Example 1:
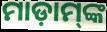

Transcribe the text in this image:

ମାଡ଼ାମ୍‌ଙ୍କ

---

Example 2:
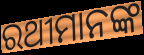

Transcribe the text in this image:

ରଥୀମାନଙ୍କ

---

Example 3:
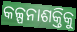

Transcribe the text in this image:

କଳ୍ପନାଶକ୍ତିକୁ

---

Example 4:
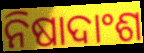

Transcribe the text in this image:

ନିଷାଦାଂଶ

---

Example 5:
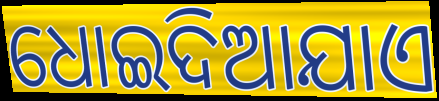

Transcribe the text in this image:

ଧୋଇଦିଆଯାଏ